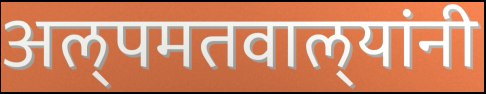
अल्पमतवाल्यांनी